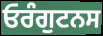
ਓਰੰਗੁਟਨਸ